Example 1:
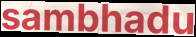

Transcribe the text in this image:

sambhadu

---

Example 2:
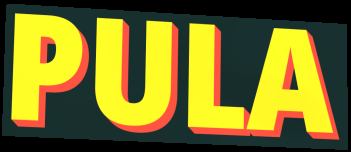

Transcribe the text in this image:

PULA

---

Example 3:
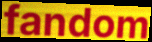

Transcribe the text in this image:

fandom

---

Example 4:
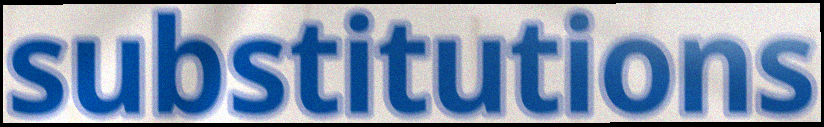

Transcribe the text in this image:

substitutions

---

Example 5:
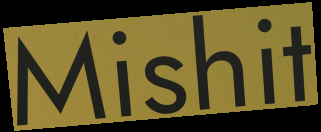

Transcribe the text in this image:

Mishit